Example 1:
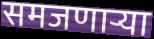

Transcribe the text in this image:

समजणाऱ्या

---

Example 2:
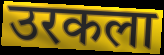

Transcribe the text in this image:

उरकला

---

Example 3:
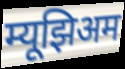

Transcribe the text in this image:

म्यूझिअम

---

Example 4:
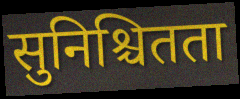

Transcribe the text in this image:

सुनिश्चितता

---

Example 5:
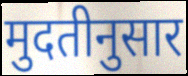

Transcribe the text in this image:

मुदतीनुसार